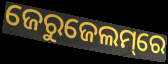
ଜେରୁଜେଲମ୍‌ରେ